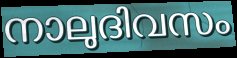
നാലുദിവസം